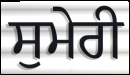
ਸੁਮੇਰੀ